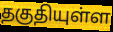
தகுதியுள்ள